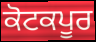
ਕੋਟਕਪੂਰ